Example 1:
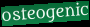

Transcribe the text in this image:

osteogenic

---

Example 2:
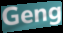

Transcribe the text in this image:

Geng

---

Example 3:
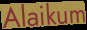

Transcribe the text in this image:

Alaikum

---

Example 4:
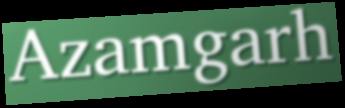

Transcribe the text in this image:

Azamgarh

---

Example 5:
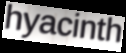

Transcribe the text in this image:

hyacinth